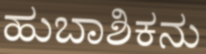
ಹುಬಾಶಿಕನು